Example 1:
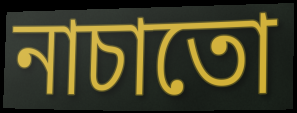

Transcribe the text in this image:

নাচাতো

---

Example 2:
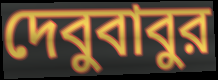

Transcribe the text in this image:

দেবুবাবুর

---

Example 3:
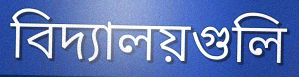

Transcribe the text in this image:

বিদ্যালয়গুলি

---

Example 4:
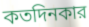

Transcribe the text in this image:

কতদিনকার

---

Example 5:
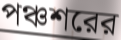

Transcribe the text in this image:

পঞ্চশরের